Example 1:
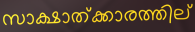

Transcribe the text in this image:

സാക്ഷാത്ക്കാരത്തില്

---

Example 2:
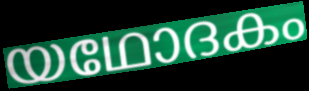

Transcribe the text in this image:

യഥോദകം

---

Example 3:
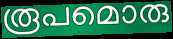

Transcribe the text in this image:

രൂപമൊരു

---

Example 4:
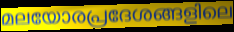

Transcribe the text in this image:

മലയോരപ്രദേശങ്ങളിലെ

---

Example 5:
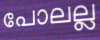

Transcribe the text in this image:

പോലല്ല